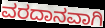
ವರದಾನವಾಗಿ